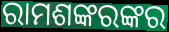
ରାମଶଙ୍କରଙ୍କର